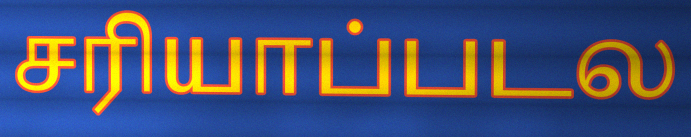
சரியாப்படல